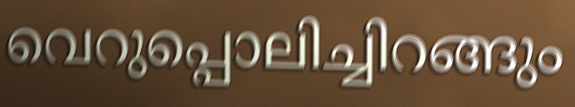
വെറുപ്പൊലിച്ചിറങ്ങും